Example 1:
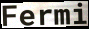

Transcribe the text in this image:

Fermi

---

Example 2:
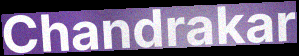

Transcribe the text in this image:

Chandrakar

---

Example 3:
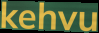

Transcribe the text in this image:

kehvu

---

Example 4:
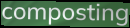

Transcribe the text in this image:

composting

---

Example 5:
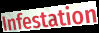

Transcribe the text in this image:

Infestation